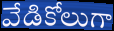
వేడికోలుగా